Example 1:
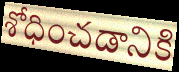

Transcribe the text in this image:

శోధించడానికి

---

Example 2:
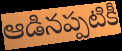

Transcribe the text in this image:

ఆడినప్పటికీ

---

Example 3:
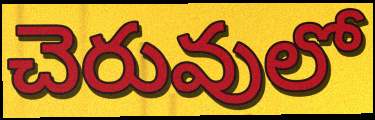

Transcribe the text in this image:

చెరువులో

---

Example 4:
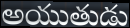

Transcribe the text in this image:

అయుతుడు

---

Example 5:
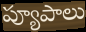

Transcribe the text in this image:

ప్యూపాలు